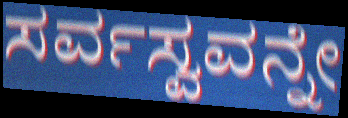
ಸರ್ವಸ್ವವನ್ನೇ